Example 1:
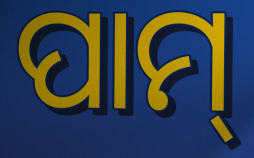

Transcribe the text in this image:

ପାମ୍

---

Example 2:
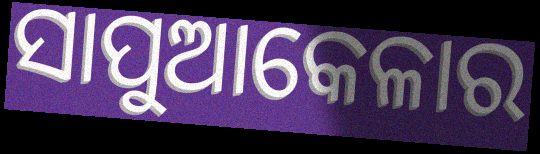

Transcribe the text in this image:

ସାପୁଆକେଳାର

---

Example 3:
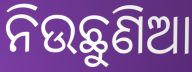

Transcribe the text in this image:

ନିଉଛୁଣିଆ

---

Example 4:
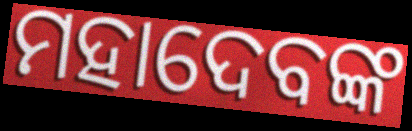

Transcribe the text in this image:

ମହାଦେବଙ୍କ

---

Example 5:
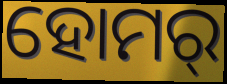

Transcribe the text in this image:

ହୋମର୍